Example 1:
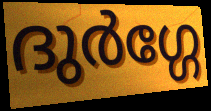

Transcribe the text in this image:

ദുർഗ്ഗേ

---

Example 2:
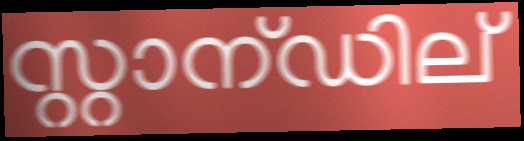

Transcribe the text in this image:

സ്റ്റാന്ഡില്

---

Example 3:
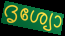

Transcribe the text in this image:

ദൃശ്യോ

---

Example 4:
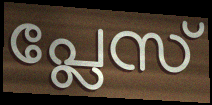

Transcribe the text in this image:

പ്ലേസ്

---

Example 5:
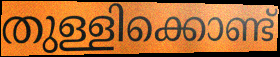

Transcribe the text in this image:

തുള്ളിക്കൊണ്ട്